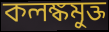
কলঙ্কমুক্ত